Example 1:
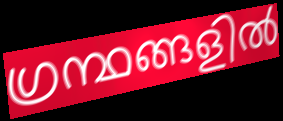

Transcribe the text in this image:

ഗ്രന്ഥങ്ങളിൽ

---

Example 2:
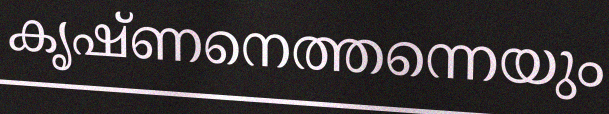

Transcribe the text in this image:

കൃഷ്ണനെത്തന്നെയും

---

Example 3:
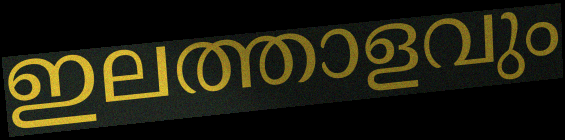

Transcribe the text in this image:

ഇലത്താളവും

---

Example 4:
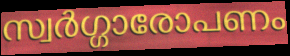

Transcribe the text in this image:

സ്വർഗ്ഗാരോപണം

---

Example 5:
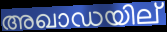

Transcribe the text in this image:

അഖാഡയില്